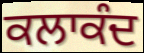
ਕਲਾਕੰਦ